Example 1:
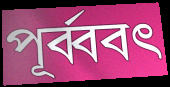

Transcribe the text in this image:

পূর্ব্ববৎ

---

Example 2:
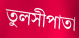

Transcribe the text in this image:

তুলসীপাতা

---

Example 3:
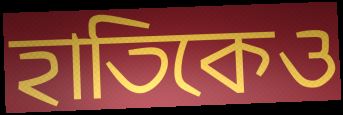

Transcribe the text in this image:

হাতিকেও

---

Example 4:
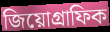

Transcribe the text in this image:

জিয়োগ্রাফিক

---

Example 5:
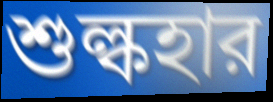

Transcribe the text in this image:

শুল্কহার